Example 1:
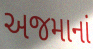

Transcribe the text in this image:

અજમાનાં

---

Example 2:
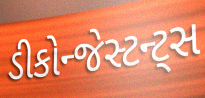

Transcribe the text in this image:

ડીકોન્જેસ્ટન્ટ્સ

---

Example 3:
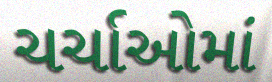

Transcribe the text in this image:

ચર્ચાઓમાં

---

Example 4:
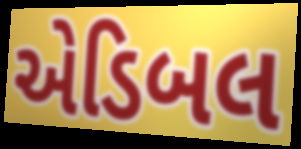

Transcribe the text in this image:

એડિબલ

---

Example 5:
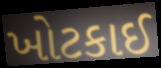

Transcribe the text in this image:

ખોટકાઈ